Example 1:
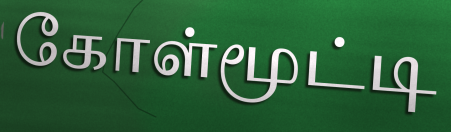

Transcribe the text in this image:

கோள்மூட்டி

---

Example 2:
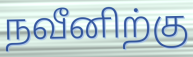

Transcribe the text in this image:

நவீனிற்கு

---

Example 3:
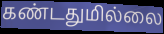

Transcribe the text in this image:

கண்டதுமில்லை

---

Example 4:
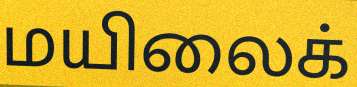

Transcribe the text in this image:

மயிலைக்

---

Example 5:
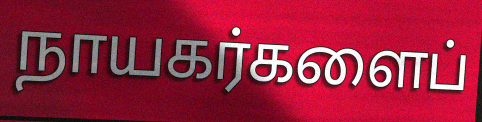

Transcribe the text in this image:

நாயகர்களைப்